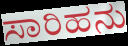
ಸಾರಿಹನು